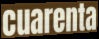
cuarenta